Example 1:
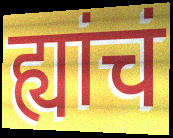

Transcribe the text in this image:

ह्यांचं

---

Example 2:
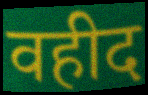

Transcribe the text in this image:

वहीद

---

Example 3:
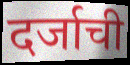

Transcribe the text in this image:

दर्जाची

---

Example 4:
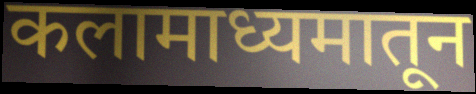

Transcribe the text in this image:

कलामाध्यमातून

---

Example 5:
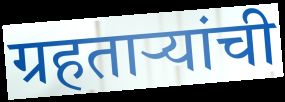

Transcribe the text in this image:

ग्रहताऱ्यांची